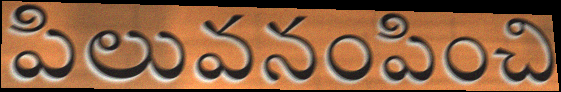
పిలువనంపించి